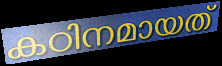
കഠിനമായത്